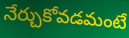
నేర్చుకోవడమంటే